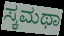
ಸ್ಕಮಥಾ